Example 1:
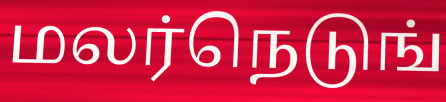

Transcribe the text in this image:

மலர்நெடுங்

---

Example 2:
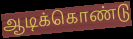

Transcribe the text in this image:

ஆடிக்கொண்டு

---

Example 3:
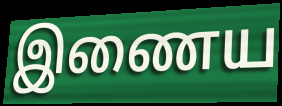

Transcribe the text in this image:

இணைய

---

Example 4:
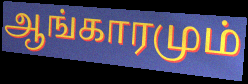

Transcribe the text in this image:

ஆங்காரமும்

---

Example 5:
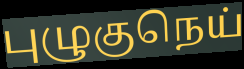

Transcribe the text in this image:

புழுகுநெய்